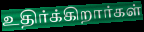
உதிர்க்கிறார்கள்